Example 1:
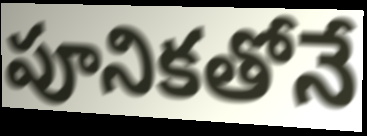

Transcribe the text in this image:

పూనికతోనే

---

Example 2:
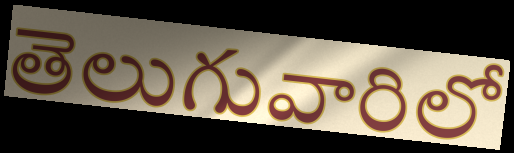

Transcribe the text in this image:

తెలుగువారిలో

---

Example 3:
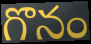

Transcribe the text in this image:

గొనం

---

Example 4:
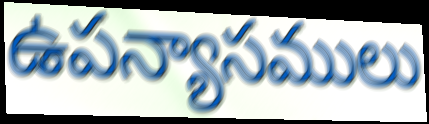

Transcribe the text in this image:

ఉపన్యాసములు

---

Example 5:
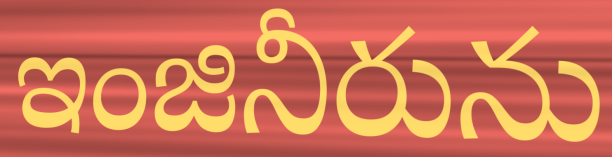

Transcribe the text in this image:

ఇంజినీరును